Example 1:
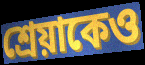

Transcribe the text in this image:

শ্রেয়াকেও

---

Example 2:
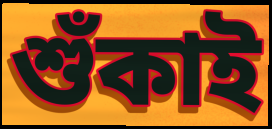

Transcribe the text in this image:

শুঁকাই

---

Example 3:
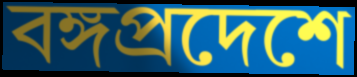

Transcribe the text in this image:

বঙ্গপ্রদেশে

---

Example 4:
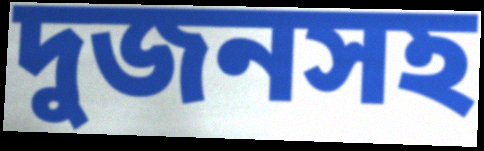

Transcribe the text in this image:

দুজনসহ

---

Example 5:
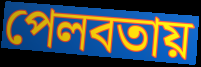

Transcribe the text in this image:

পেলবতায়